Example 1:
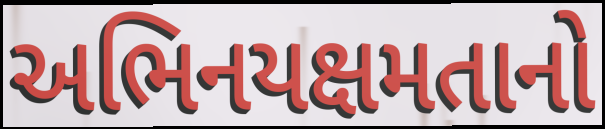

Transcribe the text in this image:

અભિનયક્ષમતાનો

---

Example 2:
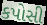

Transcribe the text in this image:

કપોસી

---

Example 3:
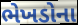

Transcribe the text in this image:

ભેખડોના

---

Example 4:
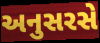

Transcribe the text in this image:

અનુસરસે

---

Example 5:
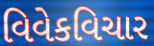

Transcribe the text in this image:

વિવેકવિચાર